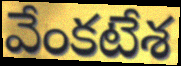
వేంకటేశ